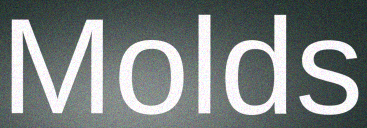
Molds